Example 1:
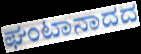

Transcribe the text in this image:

ಘಂಟಾನಾದದ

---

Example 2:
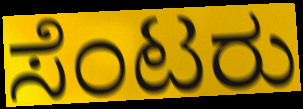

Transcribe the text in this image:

ಸೆಂಟರು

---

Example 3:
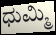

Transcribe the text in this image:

ಧುಮ್ಮಿ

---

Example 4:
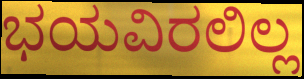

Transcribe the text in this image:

ಭಯವಿರಲಿಲ್ಲ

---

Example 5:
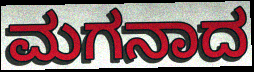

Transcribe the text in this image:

ಮಗನಾದ